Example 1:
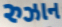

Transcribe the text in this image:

રુઝાન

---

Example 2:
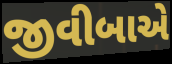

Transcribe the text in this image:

જીવીબાએ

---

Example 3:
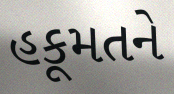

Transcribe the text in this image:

હકૂમતને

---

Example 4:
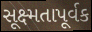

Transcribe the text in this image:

સૂક્ષ્મતાપૂર્વક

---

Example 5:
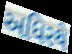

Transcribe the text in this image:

અધિરથે